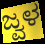
ಜ್ವಳ